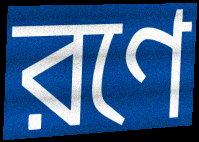
রণে